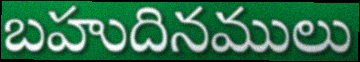
బహుదినములు